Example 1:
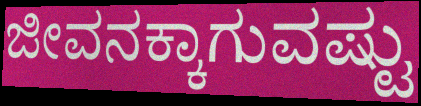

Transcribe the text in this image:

ಜೀವನಕ್ಕಾಗುವಷ್ಟು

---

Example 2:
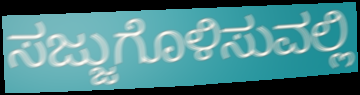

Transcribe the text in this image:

ಸಜ್ಜುಗೊಳಿಸುವಲ್ಲಿ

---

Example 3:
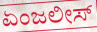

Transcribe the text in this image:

ಏಂಜಲೀಸ್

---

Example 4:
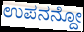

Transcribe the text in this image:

ಉಪನನ್ದೋ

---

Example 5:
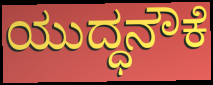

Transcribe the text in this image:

ಯುದ್ಧನೌಕೆ